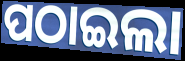
ପଠାଇଲା